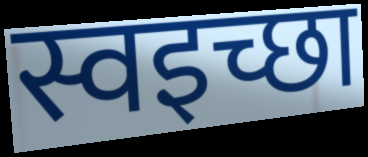
स्वइच्छा